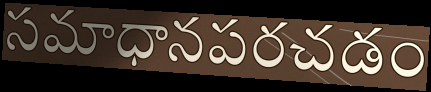
సమాధానపరచడం